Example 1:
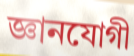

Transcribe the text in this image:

জ্ঞানযোগী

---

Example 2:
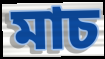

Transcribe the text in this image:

মাচ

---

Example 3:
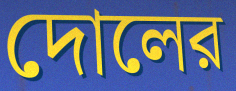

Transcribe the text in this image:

দোলের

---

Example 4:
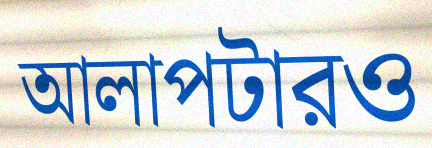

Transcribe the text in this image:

আলাপটারও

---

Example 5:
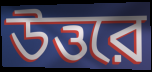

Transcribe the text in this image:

উত্তরে